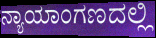
ನ್ಯಾಯಾಂಗಣದಲ್ಲಿ